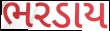
ભરડાય